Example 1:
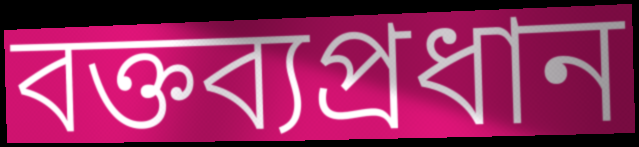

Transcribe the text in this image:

বক্তব্যপ্রধান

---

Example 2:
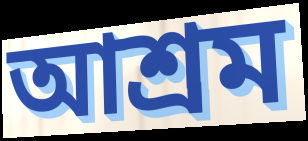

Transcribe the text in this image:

আশ্রম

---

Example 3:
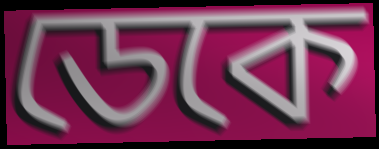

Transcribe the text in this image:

ডেকে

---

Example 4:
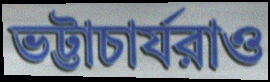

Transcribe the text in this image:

ভট্টাচার্যরাও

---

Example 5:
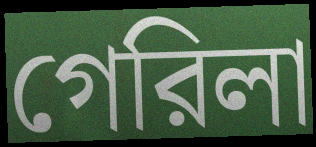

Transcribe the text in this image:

গেরিলা